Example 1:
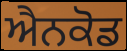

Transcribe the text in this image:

ਐਨਕੋਡ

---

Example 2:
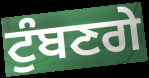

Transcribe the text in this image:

ਟੁੰਬਣਗੇ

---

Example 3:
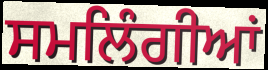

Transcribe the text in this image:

ਸਮਲਿੰਗੀਆਂ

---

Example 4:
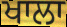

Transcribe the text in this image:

ਖਾਲਾ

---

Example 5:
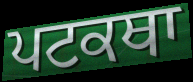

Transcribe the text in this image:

ਪਟਕਥਾ